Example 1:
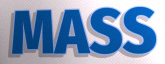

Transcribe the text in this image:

MASS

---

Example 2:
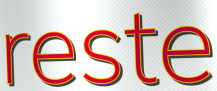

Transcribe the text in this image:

reste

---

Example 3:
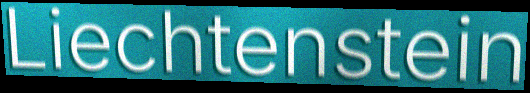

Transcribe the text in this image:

Liechtenstein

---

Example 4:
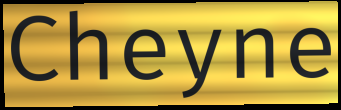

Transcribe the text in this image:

Cheyne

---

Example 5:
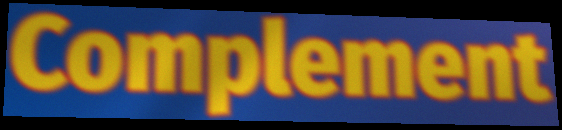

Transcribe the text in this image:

Complement